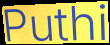
Puthi